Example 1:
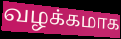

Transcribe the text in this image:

வழக்கமாக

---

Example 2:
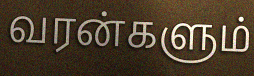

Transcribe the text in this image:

வரன்களும்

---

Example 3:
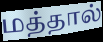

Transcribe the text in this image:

மத்தால்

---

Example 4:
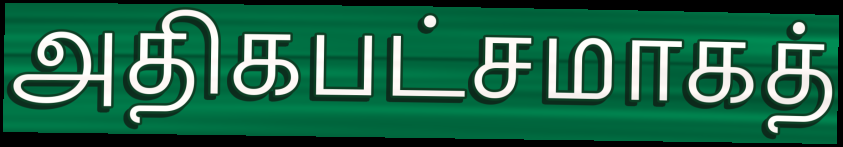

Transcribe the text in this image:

அதிகபட்சமாகத்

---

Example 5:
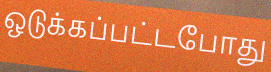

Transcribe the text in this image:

ஒடுக்கப்பட்டபோது